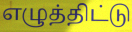
எழுத்திட்டு